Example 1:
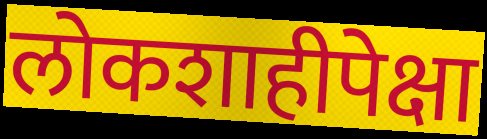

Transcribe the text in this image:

लोकशाहीपेक्षा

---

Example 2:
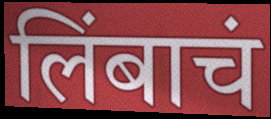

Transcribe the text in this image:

लिंबाचं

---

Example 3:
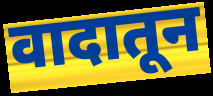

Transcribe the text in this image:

वादातून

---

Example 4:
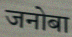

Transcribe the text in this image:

जनोबा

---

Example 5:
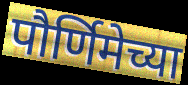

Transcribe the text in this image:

पौर्णिमेच्या